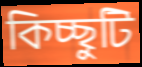
কিচ্ছুটি